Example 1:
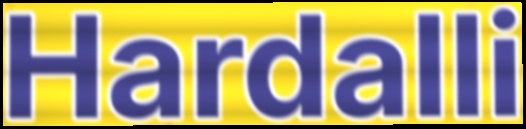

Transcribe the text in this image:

Hardalli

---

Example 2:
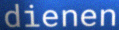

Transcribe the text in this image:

dienen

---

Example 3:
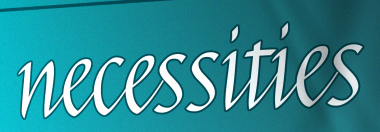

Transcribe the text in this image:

necessities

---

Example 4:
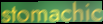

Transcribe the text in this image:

stomachic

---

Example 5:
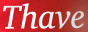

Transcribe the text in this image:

Thave